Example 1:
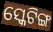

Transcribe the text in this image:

ସ୍କେଟିଙ୍ଗ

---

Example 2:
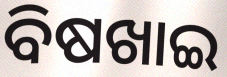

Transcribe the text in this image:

ବିଷଖାଇ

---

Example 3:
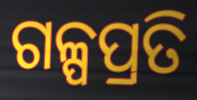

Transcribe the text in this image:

ଗଳ୍ପପ୍ରତି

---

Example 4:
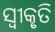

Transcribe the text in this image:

ସ୍ୱୀକୃତି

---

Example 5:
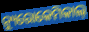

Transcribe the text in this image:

ନ୍ୟୁରୋକେମିକାଲ୍